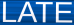
LATE